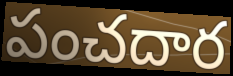
పంచదార